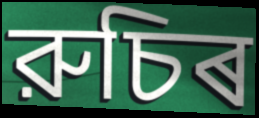
ৰুচিৰ